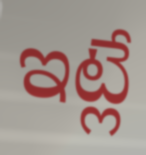
ఇట్లే